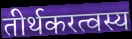
तीर्थकरत्वस्य